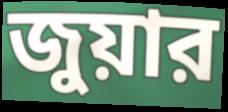
জুয়ার